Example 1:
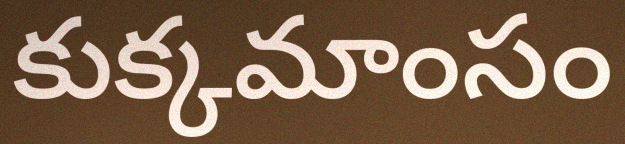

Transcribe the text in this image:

కుక్కమాంసం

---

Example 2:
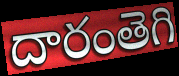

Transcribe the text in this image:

దారంతెగి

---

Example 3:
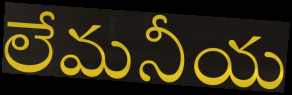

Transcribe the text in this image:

లేమనీయ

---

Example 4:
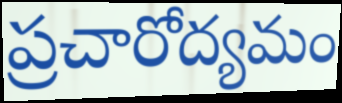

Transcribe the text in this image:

ప్రచారోద్యమం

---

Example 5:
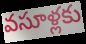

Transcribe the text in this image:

వసూళ్లకు